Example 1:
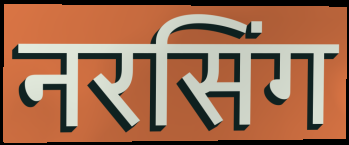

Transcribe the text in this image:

नरसिंग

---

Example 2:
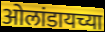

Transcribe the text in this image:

ओलांडायच्या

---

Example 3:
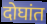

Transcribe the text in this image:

दोघांत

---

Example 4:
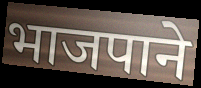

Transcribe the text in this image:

भाजपाने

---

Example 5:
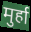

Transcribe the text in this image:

मुर्हा